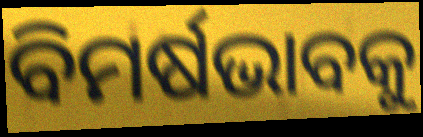
ବିମର୍ଷଭାବକୁ